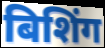
बिशिंग